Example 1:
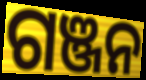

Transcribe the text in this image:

ଗଞ୍ଜନ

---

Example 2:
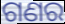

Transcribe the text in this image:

ଗଣର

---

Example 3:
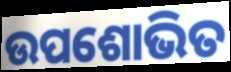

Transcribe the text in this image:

ଉପଶୋଭିତ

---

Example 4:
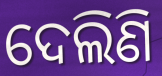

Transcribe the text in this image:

ଦେଲିଣି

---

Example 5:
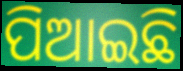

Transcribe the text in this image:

ପିଆଇଛି